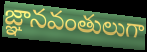
జ్ఞానవంతులుగా